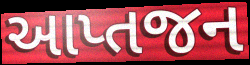
આપ્તજન